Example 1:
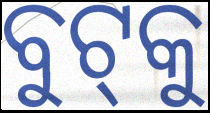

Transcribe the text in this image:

ବୁଟ୍‌କୁ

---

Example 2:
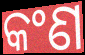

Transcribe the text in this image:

କଂଣ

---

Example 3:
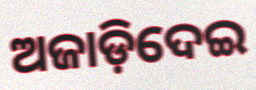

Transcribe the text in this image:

ଅଜାଡ଼ିଦେଇ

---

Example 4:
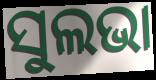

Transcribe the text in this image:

ସୁଲଭା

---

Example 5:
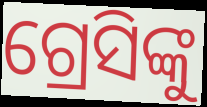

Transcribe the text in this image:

ଗ୍ରେସିଙ୍କୁ